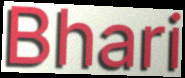
Bhari